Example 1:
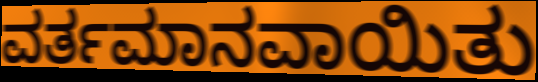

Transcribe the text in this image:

ವರ್ತಮಾನವಾಯಿತು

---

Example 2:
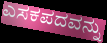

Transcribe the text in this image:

ಎಸಕಪದವನ್ನು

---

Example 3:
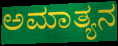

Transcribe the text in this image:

ಅಮಾತ್ಯನ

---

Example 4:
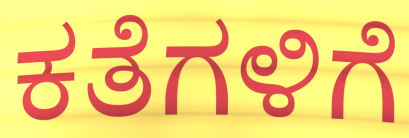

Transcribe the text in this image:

ಕತೆಗಳಿಗೆ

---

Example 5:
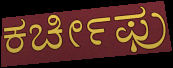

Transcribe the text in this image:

ಕರ್ಚೀಫು